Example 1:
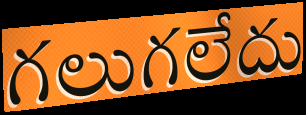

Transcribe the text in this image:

గలుగలేదు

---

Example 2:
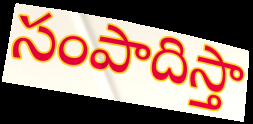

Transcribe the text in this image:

సంపాదిస్తా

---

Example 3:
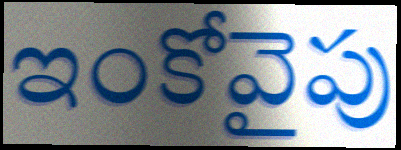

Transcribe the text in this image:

ఇంకోవైపు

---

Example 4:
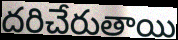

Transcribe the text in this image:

దరిచేరుతాయి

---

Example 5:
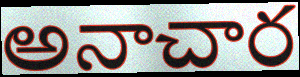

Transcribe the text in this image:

అనాచార